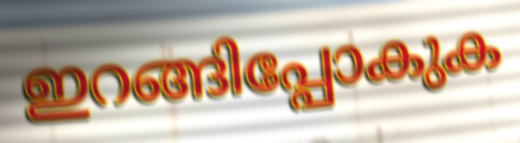
ഇറങ്ങിപ്പോകുക